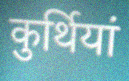
कुर्थियां